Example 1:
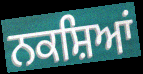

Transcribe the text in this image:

ਨਕਸ਼ਿਆਂ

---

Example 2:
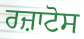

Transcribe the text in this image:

ਰਜ਼ਾਟੋਸ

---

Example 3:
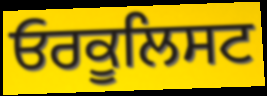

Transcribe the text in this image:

ਓਰਕੂਲਿਸਟ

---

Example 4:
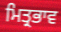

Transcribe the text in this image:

ਮਿਤ੍ਰਭਾਵ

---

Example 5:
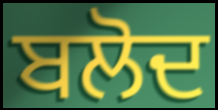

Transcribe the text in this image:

ਬਲੋਦ